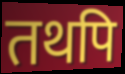
तथपि